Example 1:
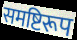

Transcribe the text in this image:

समष्टिरूप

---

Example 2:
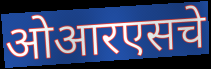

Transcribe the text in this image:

ओआरएसचे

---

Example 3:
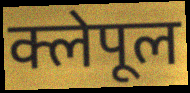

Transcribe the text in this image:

क्लेपूल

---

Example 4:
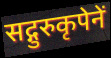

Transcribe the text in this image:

सद्गुरुकृपेनें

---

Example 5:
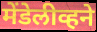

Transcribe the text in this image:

मेंडेलीव्हने